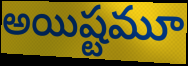
అయిష్టమూ